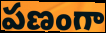
పణంగా